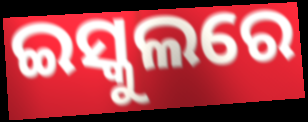
ଇସ୍କୁଲରେ